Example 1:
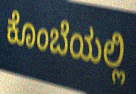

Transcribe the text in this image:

ಕೊಂಬೆಯಲ್ಲಿ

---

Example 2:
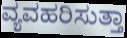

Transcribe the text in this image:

ವ್ಯವಹರಿಸುತ್ತಾ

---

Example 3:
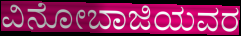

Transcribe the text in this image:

ವಿನೋಬಾಜಿಯವರ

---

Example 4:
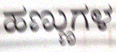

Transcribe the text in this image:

ಹಣ್ಣುಗಳ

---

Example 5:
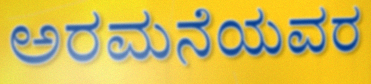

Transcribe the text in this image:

ಅರಮನೆಯವರ